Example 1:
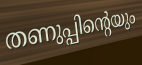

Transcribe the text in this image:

തണുപ്പിന്റെയും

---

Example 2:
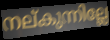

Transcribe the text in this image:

നല്കുന്നില്ലേ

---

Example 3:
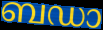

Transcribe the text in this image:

ബഡാ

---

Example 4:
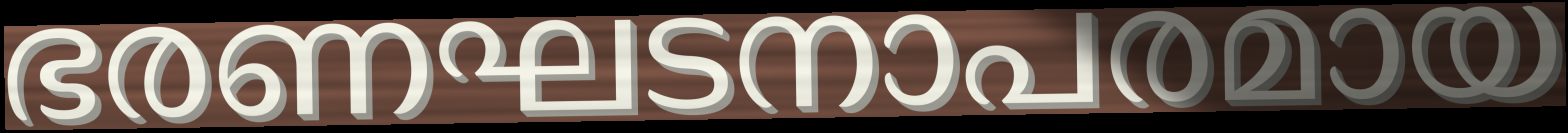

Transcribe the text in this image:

ഭരണഘടനാപരമായ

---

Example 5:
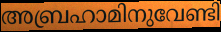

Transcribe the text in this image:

അബ്രഹാമിനുവേണ്ടി